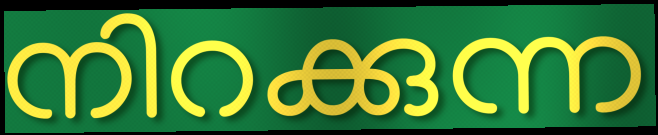
നിറക്കുന്ന